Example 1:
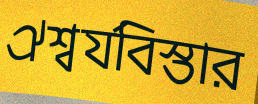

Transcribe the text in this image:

ঐশ্বর্যবিস্তার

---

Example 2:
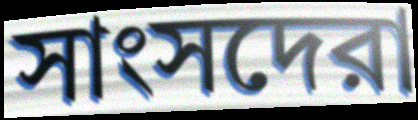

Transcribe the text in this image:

সাংসদেরা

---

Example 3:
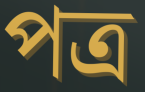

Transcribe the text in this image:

পত্র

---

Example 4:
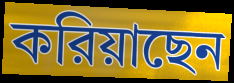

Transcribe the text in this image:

করিয়াছেন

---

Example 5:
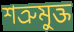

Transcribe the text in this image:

শত্রুমুক্ত